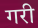
गरी